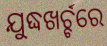
ଯୁଦ୍ଧଖର୍ଚ୍ଚରେ